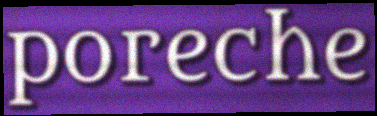
poreche